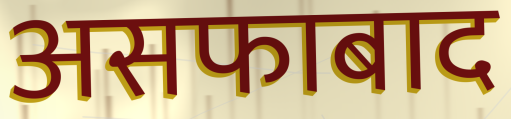
असफाबाद